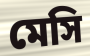
মেসি